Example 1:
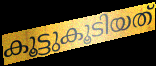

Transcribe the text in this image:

കൂട്ടുകൂടിയത്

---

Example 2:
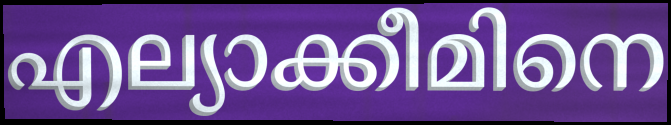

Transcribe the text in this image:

എല്യാക്കീമിനെ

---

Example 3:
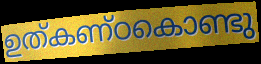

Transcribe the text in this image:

ഉത്കണ്ഠകൊണ്ടു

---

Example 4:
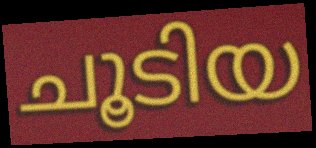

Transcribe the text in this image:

ചൂടിയ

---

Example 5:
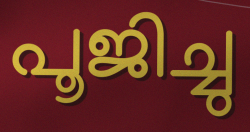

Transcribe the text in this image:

പൂജിച്ചു